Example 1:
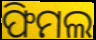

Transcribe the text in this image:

ଫିମଲ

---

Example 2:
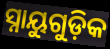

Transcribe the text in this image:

ସ୍ନାୟୁଗୁଡ଼ିକ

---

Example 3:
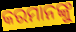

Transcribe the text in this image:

କରମାନଙ୍କୁ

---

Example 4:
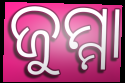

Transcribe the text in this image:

ଜୁମ୍ମା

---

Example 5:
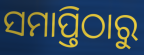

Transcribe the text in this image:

ସମାପ୍ତିଠାରୁ